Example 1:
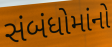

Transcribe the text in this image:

સંબંધોમાંનો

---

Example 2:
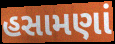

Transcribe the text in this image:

હસામણાં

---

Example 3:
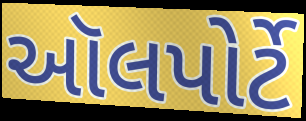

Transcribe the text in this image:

ઑલપોર્ટે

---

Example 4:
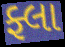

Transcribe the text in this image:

ફ્લા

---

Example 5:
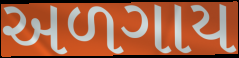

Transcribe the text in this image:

અળગાય